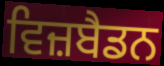
ਵਿਜ਼ਬੈਡਨ